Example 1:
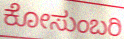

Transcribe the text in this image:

ಕೋಸುಂಬರಿ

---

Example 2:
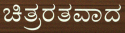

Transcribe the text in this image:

ಚಿತ್ರರತವಾದ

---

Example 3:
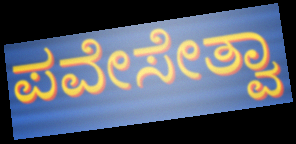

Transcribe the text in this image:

ಪವೇಸೇತ್ವಾ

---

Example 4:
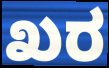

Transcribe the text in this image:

ಖರ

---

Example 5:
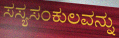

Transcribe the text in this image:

ಸಸ್ಯಸಂಕುಲವನ್ನು